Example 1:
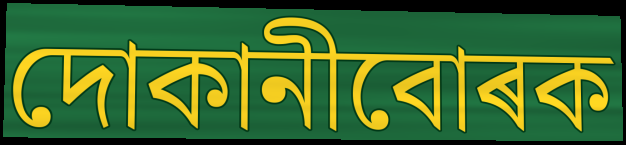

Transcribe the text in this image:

দোকানীবোৰক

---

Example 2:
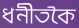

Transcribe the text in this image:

ধনীতকৈ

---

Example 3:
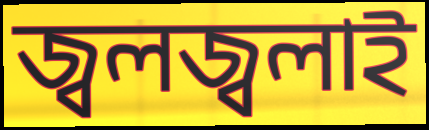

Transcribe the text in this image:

জ্বলজ্বলাই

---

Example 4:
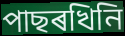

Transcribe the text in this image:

পাছৰখিনি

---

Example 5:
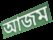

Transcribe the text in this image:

আজম